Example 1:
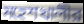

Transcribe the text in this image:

মহেশখালীর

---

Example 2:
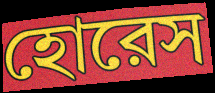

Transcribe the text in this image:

হোরেস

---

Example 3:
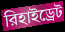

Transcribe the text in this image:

রিহাইড্রেট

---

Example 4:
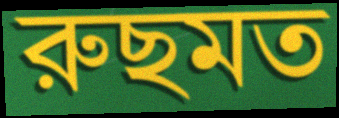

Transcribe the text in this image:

রুছমত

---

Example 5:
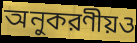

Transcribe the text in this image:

অনুকরণীয়ও